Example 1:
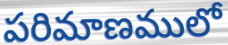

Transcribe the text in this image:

పరిమాణములో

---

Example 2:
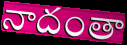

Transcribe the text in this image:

నాదంతా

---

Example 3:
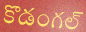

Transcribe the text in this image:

కొడంగల్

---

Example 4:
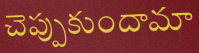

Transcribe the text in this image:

చెప్పుకుందామా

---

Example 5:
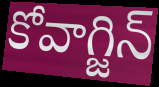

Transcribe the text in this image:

కోవాగ్జిన్